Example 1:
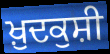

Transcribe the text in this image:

ਖ਼ੁਦਕੁਸ਼ੀ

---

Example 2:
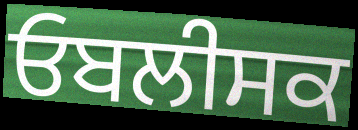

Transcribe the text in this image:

ਓਬਲੀਸਕ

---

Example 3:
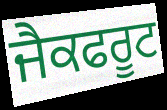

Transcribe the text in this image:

ਜੈਕਫਰੂਟ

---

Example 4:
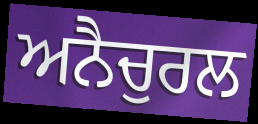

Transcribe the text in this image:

ਅਨੈਚੁਰਲ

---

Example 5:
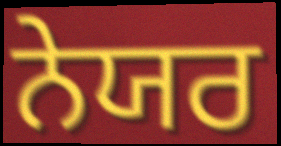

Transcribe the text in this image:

ਨੇਯਰ